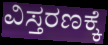
ವಿಸ್ತರಣಕ್ಕೆ